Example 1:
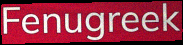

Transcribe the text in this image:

Fenugreek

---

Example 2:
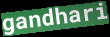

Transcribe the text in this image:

gandhari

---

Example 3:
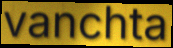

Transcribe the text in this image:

vanchta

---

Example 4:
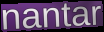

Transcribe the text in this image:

nantar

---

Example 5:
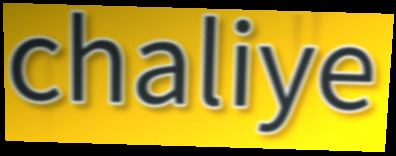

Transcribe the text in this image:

chaliye